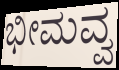
ಭೀಮವ್ವ